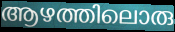
ആഴത്തിലൊരു